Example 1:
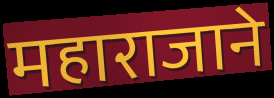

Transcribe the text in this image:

महाराजाने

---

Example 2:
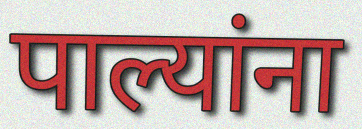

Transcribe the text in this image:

पाल्यांना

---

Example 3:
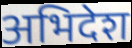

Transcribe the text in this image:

अभिदेश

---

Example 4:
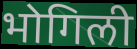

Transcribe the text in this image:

भोगिली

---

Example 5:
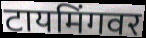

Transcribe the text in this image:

टायमिंगवर